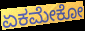
ಏಕಮೇಕೋ